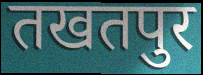
तखतपुर